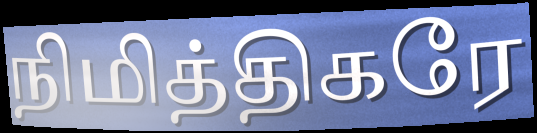
நிமித்திகரே